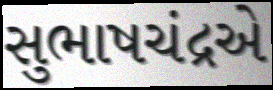
સુભાષચંદ્રએ